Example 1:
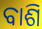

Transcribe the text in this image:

ବାଶି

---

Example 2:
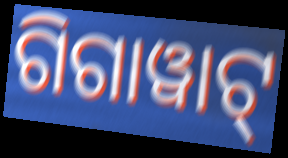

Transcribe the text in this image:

ଗିଗାୱାଟ୍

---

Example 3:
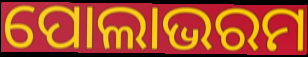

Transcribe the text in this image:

ପୋଲାଭରମ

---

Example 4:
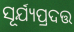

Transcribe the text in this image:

ସୂର୍ଯ୍ୟପ୍ରଦତ୍ତ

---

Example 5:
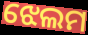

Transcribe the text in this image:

ଝେଲମ